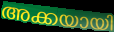
അക്കയായി